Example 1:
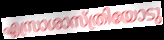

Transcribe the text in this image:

എസ്രാശാസ്ത്രിയോടു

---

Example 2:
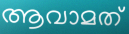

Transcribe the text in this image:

ആവാമത്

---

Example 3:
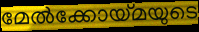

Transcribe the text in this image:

മേൽക്കോയ്മയുടെ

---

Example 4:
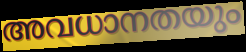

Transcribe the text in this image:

അവധാനതയും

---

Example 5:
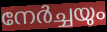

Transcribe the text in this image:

നേർച്ചയും